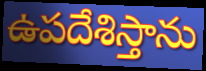
ఉపదేశిస్తాను